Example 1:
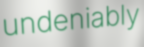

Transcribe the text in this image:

undeniably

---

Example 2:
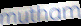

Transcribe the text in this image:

mutham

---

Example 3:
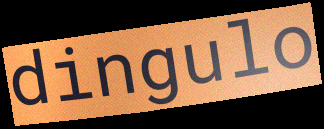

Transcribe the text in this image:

dingulo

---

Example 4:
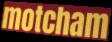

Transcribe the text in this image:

motcham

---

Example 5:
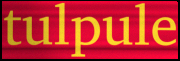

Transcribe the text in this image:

tulpule